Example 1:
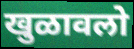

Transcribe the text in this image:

खुळावलो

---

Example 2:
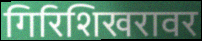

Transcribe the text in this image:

गिरिशिखरावर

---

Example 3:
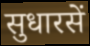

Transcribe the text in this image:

सुधारसें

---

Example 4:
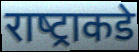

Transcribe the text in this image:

राष्ट्राकडे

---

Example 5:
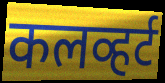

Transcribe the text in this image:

कलव्हर्ट